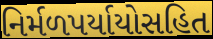
નિર્મળપર્યાયોસહિત